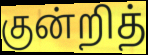
குன்றித்